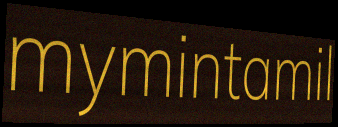
mymintamil